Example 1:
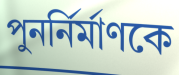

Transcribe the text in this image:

পুনর্নির্মাণকে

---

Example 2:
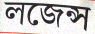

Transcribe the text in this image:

লজেন্স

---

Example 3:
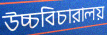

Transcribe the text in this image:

উচ্চবিচারালয়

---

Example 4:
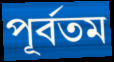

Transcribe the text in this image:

পূর্বতম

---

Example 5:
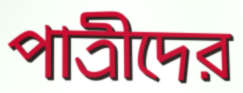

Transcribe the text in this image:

পাত্রীদের